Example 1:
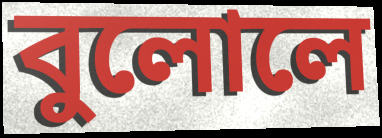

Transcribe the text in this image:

বুলোলে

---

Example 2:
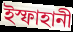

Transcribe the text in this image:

ইস্ফাহানী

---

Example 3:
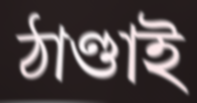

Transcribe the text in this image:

ঠাণ্ডাই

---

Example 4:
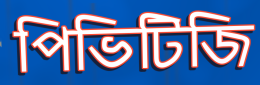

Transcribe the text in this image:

পিভিটিজি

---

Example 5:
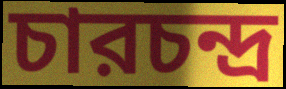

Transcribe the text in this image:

চারচন্দ্র